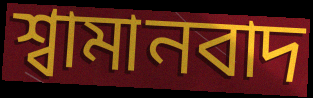
শ্বামানবাদ